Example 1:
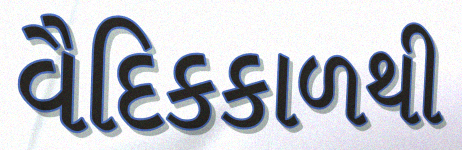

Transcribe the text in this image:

વૈદિકકાળથી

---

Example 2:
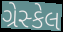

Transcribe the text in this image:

ગ્રેસ્કેલ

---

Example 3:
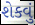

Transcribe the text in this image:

શેકવું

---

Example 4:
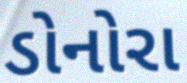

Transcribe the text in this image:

ડોનોરા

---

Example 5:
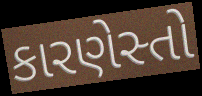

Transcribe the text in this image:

કારણેસ્તો